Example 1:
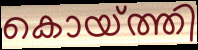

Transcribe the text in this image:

കൊയ്‌ത്തി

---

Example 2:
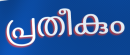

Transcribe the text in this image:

പ്രതീകും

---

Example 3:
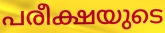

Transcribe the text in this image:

പരീക്ഷയുടെ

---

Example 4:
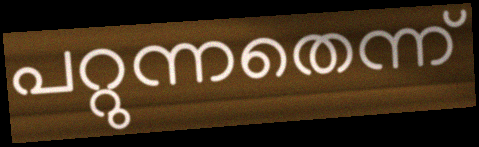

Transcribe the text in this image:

പറ്റുന്നതെന്ന്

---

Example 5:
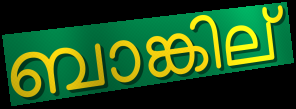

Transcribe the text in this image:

ബാങ്കില്